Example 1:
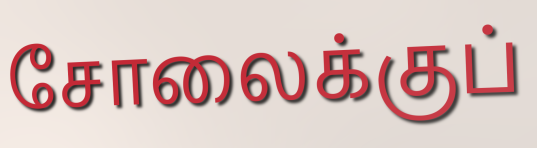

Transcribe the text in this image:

சோலைக்குப்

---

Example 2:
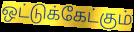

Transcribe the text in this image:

ஒட்டுக்கேட்கும்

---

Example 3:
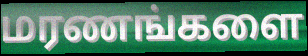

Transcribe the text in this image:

மரணங்களை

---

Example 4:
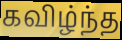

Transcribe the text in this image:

கவிழ்ந்த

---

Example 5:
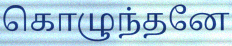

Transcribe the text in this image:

கொழுந்தனே